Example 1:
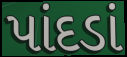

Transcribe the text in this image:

પાંદડાં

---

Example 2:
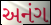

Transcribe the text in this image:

અનંગ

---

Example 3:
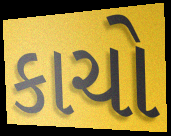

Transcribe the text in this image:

કાચો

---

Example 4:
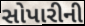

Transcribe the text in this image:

સોપારીની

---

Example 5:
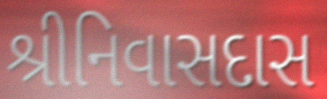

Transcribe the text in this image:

શ્રીનિવાસદાસ